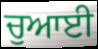
ਚੁਆਈ